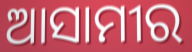
ଆସାମୀର